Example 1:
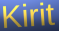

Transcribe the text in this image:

Kirit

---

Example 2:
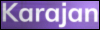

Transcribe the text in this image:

Karajan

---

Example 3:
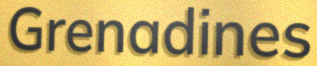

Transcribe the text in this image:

Grenadines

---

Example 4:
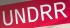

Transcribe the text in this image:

UNDRR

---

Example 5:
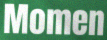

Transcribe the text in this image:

Momen